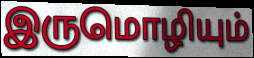
இருமொழியும்